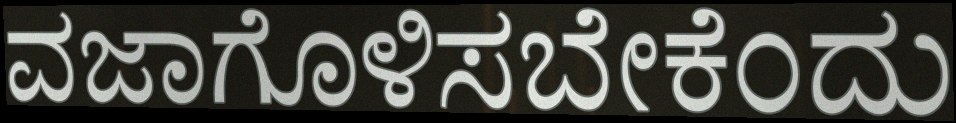
ವಜಾಗೊಳಿಸಬೇಕೆಂದು